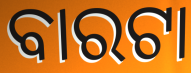
ବାରଟା